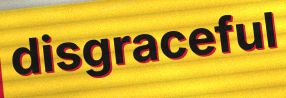
disgraceful